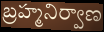
బ్రహ్మనిర్వాణ